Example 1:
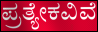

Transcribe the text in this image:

ಪ್ರತ್ಯೇಕವಿವೆ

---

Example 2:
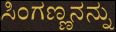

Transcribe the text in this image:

ಸಿಂಗಣ್ಣನನ್ನು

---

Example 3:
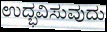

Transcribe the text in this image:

ಉದ್ಭವಿಸುವುದು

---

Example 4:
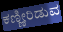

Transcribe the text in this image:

ಕಣ್ಣೀರಿಡುವ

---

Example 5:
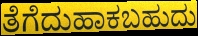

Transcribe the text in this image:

ತೆಗೆದುಹಾಕಬಹುದು